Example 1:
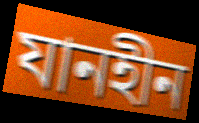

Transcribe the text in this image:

যানহীন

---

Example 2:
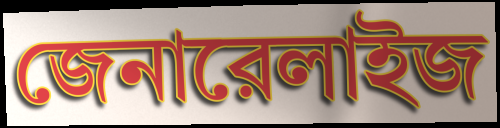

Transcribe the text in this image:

জেনারেলাইজ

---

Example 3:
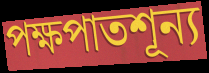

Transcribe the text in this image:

পক্ষপাতশূন্য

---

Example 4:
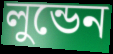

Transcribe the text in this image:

লুন্ডেন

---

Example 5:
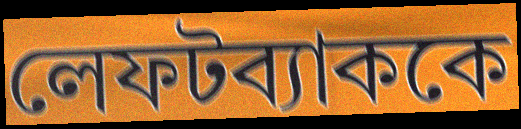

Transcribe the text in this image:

লেফটব্যাককে